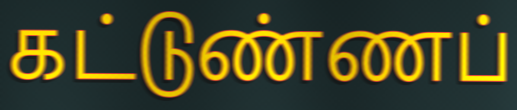
கட்டுண்ணப்